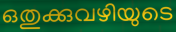
ഒതുക്കുവഴിയുടെ